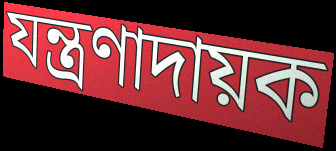
যন্ত্রণাদায়ক